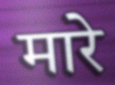
मारे